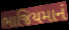
ભાજિયમાનં